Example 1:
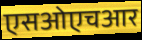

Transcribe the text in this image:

एसओएचआर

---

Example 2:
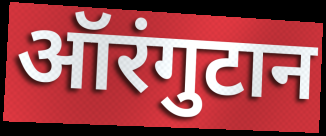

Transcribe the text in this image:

ऑरंगुटान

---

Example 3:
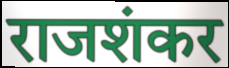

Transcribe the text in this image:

राजशंकर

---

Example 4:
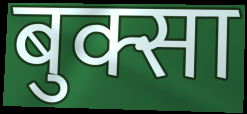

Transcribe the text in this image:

बुक्सा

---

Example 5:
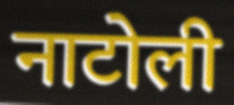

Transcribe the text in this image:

नाटोली